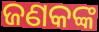
ଜଣକଙ୍କ